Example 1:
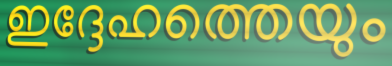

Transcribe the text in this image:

ഇദ്ദേഹത്തെയും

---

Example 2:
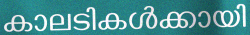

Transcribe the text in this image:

കാലടികൾക്കായി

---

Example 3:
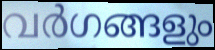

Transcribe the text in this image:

വർഗങ്ങളും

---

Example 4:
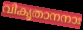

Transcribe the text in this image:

വികൃതാനനാഃ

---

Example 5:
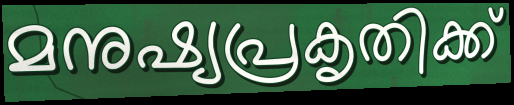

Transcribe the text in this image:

മനുഷ്യപ്രകൃതിക്ക്